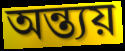
অন্ত্যয়